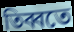
তিব্বতে